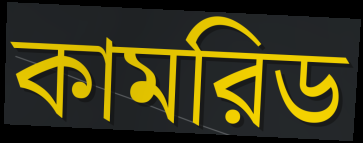
কামরিড